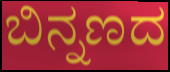
ಬಿನ್ನಣದ